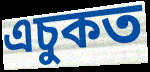
এচুকত